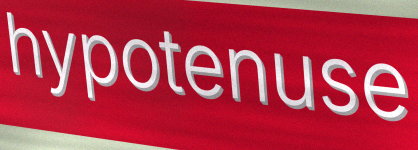
hypotenuse